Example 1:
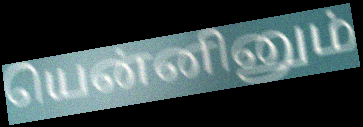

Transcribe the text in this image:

யென்னினும்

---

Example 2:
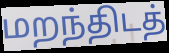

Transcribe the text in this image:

மறந்திடத்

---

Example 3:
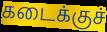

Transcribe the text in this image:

கடைக்குச்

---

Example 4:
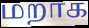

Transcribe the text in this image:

மறாக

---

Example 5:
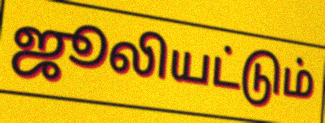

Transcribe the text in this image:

ஜூலியட்டும்